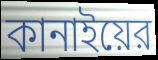
কানাইয়ের